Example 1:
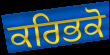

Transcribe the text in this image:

ਕਰਿਭਕੋ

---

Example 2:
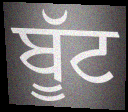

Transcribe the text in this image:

ਬੂੱਟ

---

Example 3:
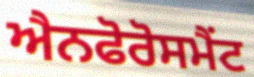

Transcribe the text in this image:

ਐਨਫੋਰੋਸਮੈਂਟ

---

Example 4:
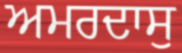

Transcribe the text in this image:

ਅਮਰਦਾਸੁ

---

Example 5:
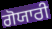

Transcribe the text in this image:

ਗੋਯਾਰੀ